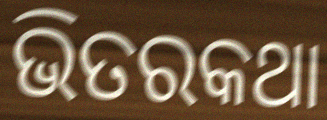
ଭିତରକଥା